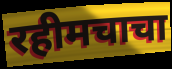
रहीमचाचा